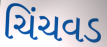
ચિંચવડ